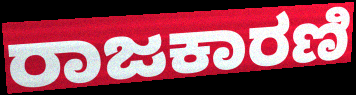
ರಾಜಕಾರಣಿ